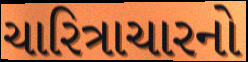
ચારિત્રાચારનો